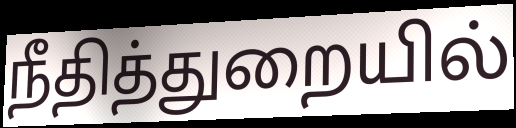
நீதித்துறையில்